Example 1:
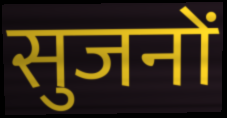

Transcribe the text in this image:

सुजनों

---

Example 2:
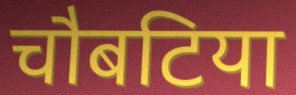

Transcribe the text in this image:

चौबटिया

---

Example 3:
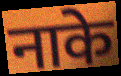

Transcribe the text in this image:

नाके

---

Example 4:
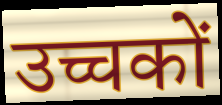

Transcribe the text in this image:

उच्चकों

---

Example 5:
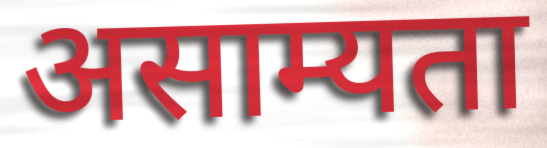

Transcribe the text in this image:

असाम्यता